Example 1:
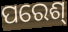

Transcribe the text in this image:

ପରେଶ୍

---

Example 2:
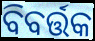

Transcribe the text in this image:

ବିବର୍ତ୍ତକ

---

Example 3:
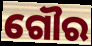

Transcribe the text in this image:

ଗୌର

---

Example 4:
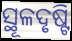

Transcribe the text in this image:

ସ୍ଥୂଳଦୃଷ୍ଟି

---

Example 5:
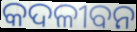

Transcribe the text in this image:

କଦଳୀବନ